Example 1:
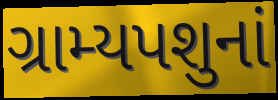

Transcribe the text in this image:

ગ્રામ્યપશુનાં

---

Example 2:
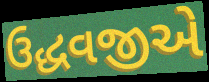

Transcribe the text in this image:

ઉદ્ધવજીએ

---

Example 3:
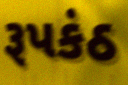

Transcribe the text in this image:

રૂપકંઠ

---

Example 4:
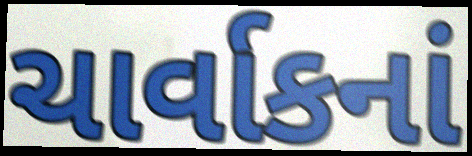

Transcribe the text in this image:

ચાર્વાકનાં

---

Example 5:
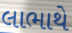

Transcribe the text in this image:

લાભાથે